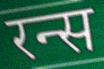
रन्स